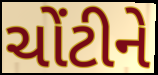
ચોંટીને